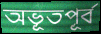
অভূতপূৰ্ব